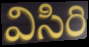
విసిరి